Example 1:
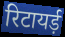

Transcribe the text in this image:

रिटायर्ड़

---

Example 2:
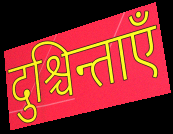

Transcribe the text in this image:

दुश्चिन्ताएँ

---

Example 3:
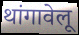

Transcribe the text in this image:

थांगावेलू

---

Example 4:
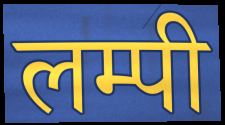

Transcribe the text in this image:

लम्पी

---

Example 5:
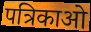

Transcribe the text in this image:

पत्रिकाओ